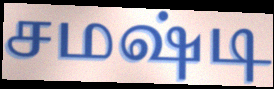
சமஷ்டி